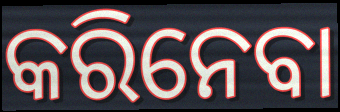
କରିନେବା